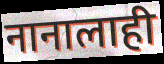
नानालाही